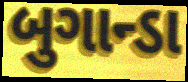
બુગાન્ડા